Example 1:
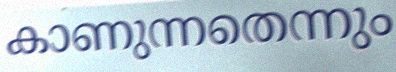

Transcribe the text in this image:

കാണുന്നതെന്നും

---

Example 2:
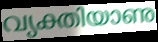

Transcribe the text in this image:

വ്യക്തിയാണു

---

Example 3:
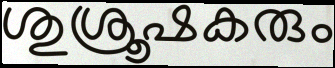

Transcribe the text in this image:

ശുശ്രൂഷകരും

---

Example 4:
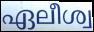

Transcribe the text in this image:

ഏലീശ്വ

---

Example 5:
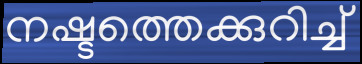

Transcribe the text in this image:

നഷ്ടത്തെക്കുറിച്ച്